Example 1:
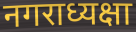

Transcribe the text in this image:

नगराध्यक्षा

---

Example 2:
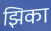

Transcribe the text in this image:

झिका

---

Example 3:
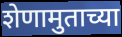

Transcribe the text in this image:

शेणामुताच्या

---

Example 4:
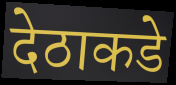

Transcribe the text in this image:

देठाकडे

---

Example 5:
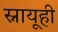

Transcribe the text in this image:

स्नायूही